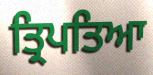
ਤ੍ਰਿਪਤਿਆ